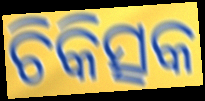
ଚିକିତ୍ସକ